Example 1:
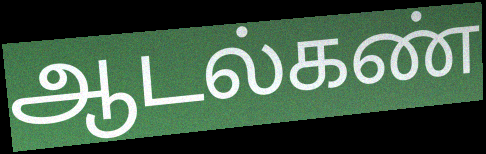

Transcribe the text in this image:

ஆடல்கண்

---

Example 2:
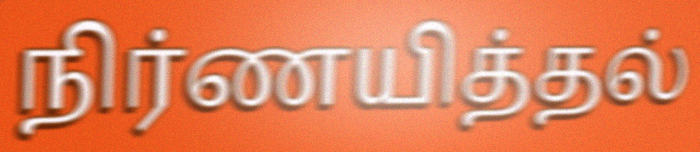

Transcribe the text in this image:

நிர்ணயித்தல்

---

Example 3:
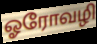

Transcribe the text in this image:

ஓரோவழி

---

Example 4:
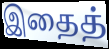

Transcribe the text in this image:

இதைத்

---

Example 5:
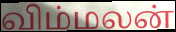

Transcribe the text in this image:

விம்மலன்